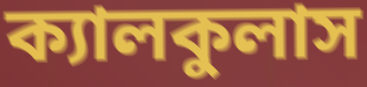
ক্যালকুলাস